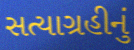
સત્યાગ્રહીનું